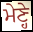
ਮੇਣ੍ਹੇ